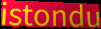
istondu